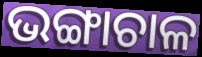
ଭଙ୍ଗାଚାଳ